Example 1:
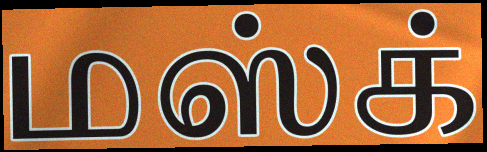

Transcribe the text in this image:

மஸ்க்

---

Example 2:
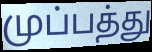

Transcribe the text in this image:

முப்பத்து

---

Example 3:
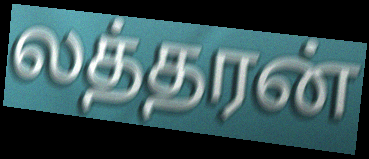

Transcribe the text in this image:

லத்தரன்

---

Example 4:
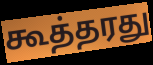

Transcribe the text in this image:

கூத்தரது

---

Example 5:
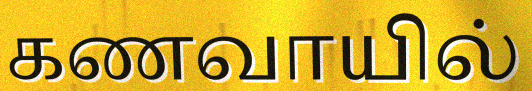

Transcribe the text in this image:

கணவாயில்